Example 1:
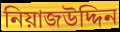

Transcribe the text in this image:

নিয়াজউদ্দিন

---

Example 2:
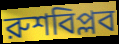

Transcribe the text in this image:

রুশবিপ্লব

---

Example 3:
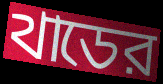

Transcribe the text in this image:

থাডের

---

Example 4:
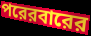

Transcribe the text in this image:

পরেরবারের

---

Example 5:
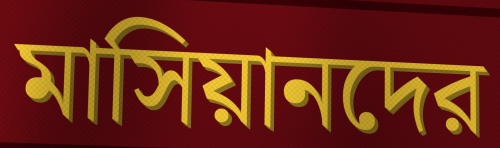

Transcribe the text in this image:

মাসিয়ানদের